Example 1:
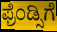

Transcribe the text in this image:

ಫ್ರೆಂಡ್ಸಿಗೆ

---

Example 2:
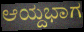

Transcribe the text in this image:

ಆಯ್ದಭಾಗ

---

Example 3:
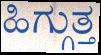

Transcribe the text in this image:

ಹಿಗ್ಗುತ್ತ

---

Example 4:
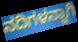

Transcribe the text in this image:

ನದಿಗಳನ್ನಾಗಿ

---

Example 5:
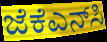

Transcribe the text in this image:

ಜೆಕೆಎನ್‌ಸಿ